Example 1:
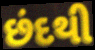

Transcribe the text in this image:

છંદથી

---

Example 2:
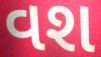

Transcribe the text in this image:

વશ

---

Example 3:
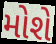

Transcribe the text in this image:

મોશે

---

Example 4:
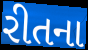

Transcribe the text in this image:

રીતના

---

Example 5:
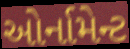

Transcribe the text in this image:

ઓર્નામેન્ટ